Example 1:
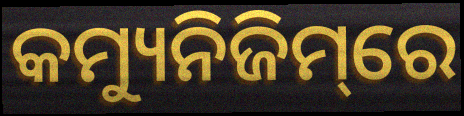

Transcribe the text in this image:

କମ୍ୟୁନିଜିମ୍‌ରେ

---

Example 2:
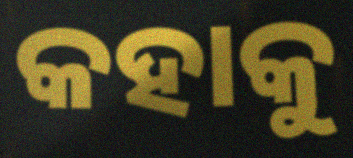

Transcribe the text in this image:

କହାକୁ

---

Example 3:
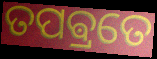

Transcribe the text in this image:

ତପଵ୍ରତେ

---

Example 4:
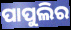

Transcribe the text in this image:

ପାପୁଲିର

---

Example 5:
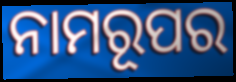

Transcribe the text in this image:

ନାମରୂପର